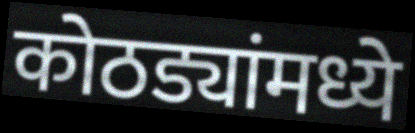
कोठड्यांमध्ये